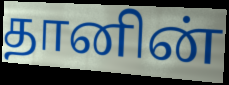
தானின்